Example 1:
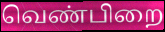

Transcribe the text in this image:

வெண்பிறை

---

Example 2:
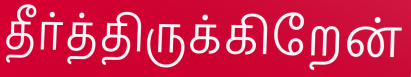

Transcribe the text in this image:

தீர்த்திருக்கிறேன்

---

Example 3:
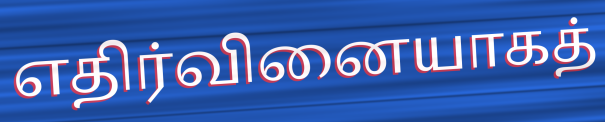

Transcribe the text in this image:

எதிர்வினையாகத்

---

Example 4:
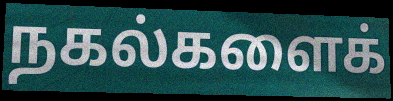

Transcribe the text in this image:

நகல்களைக்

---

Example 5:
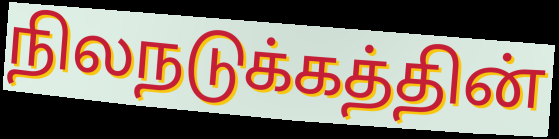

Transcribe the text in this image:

நிலநடுக்கத்தின்